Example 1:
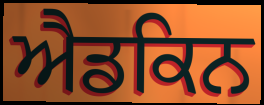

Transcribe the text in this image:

ਐਡਕਿਨ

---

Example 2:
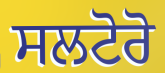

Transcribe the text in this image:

ਸਲਟੋਰੋ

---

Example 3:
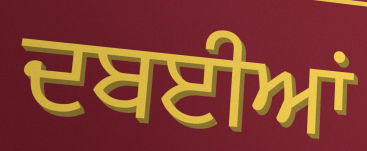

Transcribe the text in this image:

ਦਬਈਆਂ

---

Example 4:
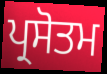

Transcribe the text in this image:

ਪ੍ਰਸੋਤਮ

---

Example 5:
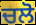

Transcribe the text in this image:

ਚਲੋ